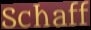
Schaff